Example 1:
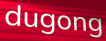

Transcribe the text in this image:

dugong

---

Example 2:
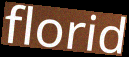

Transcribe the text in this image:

florid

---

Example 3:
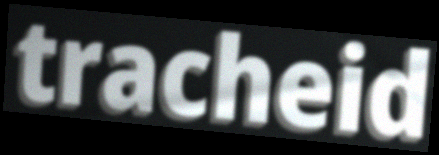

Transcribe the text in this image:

tracheid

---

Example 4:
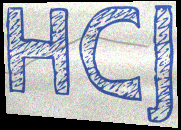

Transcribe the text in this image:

HCJ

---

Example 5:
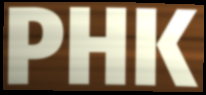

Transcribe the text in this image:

PHK